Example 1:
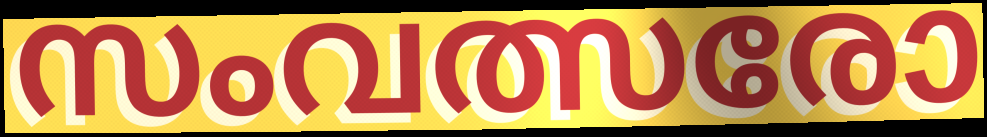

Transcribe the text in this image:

സംവത്സരോ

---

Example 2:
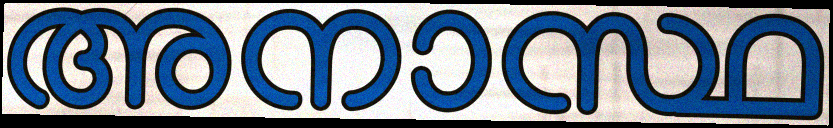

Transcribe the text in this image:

അനാസ്ഥ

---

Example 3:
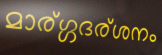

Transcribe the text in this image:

മാര്ഗ്ഗദര്ശനം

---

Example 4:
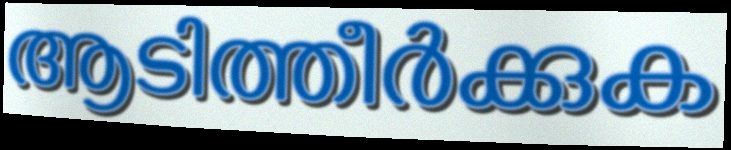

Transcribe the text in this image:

ആടിത്തീർക്കുക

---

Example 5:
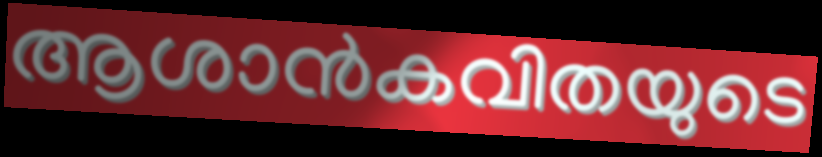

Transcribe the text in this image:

ആശാൻകവിതയുടെ